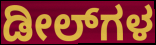
ಡೀಲ್‌ಗಳ